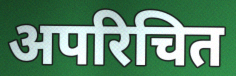
अपरिचित